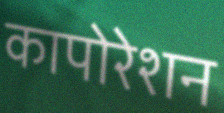
कापोरेशन